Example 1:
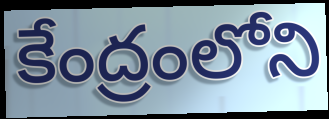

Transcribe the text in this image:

కేంద్రంలోని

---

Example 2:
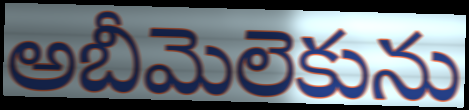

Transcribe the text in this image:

అబీమెలెకును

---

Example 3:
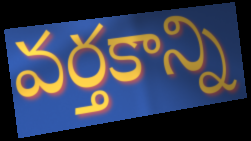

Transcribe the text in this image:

వర్తకాన్ని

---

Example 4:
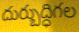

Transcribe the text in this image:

దుర్బుద్ధిగల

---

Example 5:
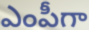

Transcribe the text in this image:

ఎంపీగా